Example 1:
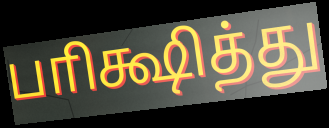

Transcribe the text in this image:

பரிக்ஷித்து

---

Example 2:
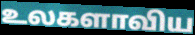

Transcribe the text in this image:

உலகளாவிய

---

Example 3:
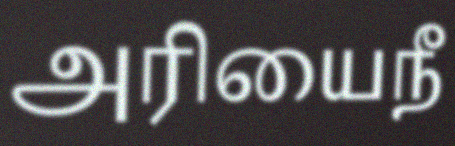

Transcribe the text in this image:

அரியைநீ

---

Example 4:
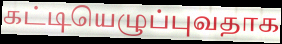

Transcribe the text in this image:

கட்டியெழுப்புவதாக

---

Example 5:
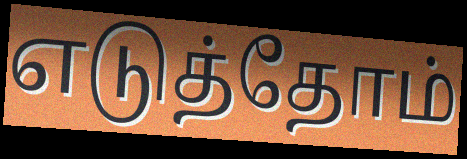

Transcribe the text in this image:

எடுத்தோம்